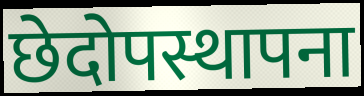
छेदोपस्थापना